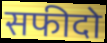
सफीदो